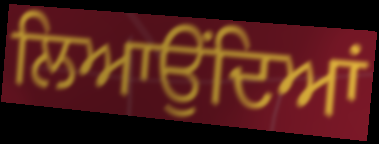
ਲਿਆਉਂਦਿਆਂ